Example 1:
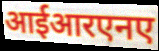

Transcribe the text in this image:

आईआरएनए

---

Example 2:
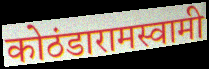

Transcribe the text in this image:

कोठंडारामस्वामी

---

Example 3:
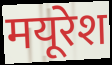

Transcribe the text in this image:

मयूरेश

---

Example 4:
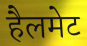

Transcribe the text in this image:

हैलमेट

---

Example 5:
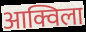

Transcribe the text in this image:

आक्विला